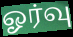
ஓர்வு